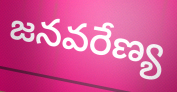
జనవరేణ్య